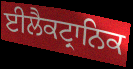
ਈਲੈਕਟ੍ਰਾਨਿਕ